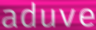
aduve